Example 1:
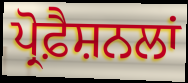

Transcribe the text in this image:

ਪ੍ਰੋਫ਼ੈਸ਼ਨਲਾਂ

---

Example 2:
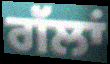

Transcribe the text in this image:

ਗੱਲਾਂ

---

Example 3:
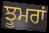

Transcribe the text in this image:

ਝੂਮਰਾਂ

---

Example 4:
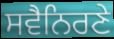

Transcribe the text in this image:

ਸਵੈਨਿਰਣੇ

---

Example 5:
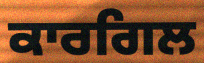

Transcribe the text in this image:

ਕਾਰਗਿਲ